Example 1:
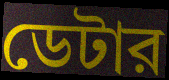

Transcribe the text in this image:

ডেটার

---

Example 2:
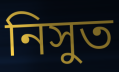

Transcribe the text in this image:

নিসুত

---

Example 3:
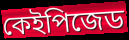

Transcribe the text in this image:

কেইপিজেড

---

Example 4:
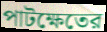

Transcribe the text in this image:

পাটক্ষেতের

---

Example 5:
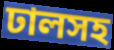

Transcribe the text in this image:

ঢালসহ